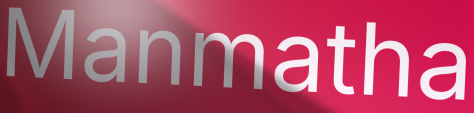
Manmatha